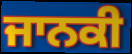
ਜਾਨਕੀ